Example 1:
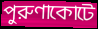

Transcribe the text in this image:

পুরুণাকোটে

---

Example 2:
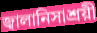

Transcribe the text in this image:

জ্বালানিসাশ্রয়ী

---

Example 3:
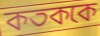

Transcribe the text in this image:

কতককে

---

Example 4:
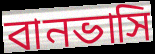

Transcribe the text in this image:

বানভাসি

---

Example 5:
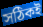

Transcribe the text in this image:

সঠিকই